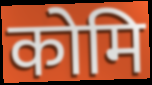
कोमि